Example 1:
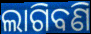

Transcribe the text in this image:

ଲାଗିବଣି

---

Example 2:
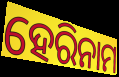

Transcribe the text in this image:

ହେରିନାମ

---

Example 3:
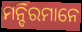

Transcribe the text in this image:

ମନ୍ଦିରମାନେ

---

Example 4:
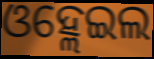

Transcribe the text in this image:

ଓହ୍ଲେଇଲ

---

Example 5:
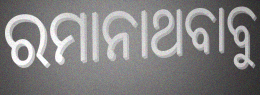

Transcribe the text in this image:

ରମାନାଥବାବୁ